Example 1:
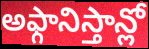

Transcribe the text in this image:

అఫ్గానిస్తాన్లో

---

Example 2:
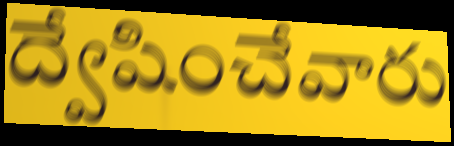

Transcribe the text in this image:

ద్వేషించేవారు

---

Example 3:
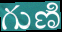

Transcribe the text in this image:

గుణి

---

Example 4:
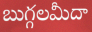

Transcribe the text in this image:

బుగ్గలమీదా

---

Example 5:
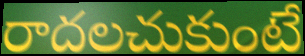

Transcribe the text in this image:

రాదలచుకుంటే